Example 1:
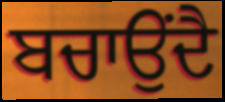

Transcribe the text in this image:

ਬਚਾਉਂਦੈ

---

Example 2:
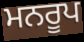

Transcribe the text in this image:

ਮਨਰੂਪ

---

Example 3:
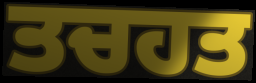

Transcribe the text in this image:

ਤਚਹਤ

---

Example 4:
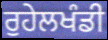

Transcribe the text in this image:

ਰੁਹੇਲਖੰਡੀ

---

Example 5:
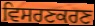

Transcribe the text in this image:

ਵਿਸਰਣਕਰਣ